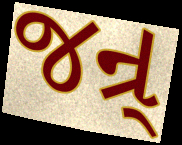
જન્ર્